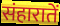
संहारातें